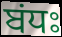
ਬਂਧਃ